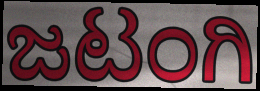
ಜಟಂಗಿ